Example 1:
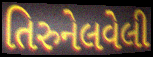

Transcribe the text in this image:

તિરુનેલવેલી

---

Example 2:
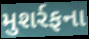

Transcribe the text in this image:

મુશર્રફના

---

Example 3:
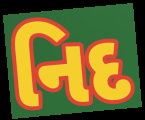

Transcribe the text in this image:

નિદ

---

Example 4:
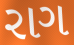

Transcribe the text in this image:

રાગ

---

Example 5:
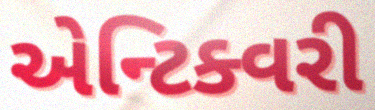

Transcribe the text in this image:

એન્ટિક્વરી